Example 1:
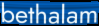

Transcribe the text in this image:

bethalam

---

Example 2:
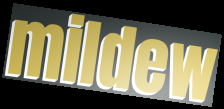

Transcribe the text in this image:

mildew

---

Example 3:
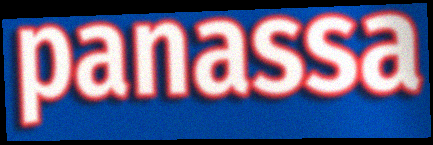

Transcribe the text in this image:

panassa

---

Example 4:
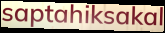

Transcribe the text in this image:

saptahiksakal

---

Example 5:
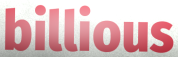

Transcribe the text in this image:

billious